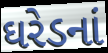
ઘરેડનાં